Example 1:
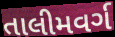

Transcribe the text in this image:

તાલીમવર્ગ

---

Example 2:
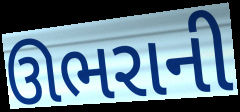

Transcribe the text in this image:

ઊભરાની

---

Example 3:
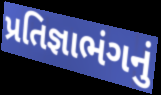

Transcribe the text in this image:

પ્રતિજ્ઞાભંગનું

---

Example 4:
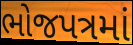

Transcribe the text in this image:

ભોજપત્રમાં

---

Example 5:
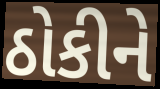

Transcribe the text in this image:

ઠોકીને